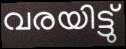
വരയിട്ടു്